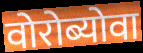
वोरोब्योवा